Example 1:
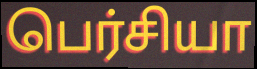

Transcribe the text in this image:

பெர்சியா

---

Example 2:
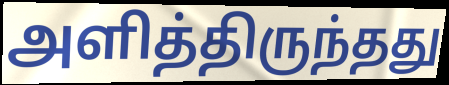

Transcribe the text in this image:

அளித்திருந்தது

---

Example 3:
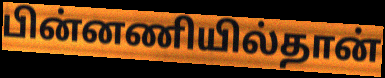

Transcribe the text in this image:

பின்னணியில்தான்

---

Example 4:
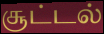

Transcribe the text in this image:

சூட்டல்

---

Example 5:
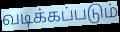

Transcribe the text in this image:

வடிக்கப்படும்